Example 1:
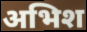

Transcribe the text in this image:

अभिश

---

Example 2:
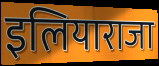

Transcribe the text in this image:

इलियाराजा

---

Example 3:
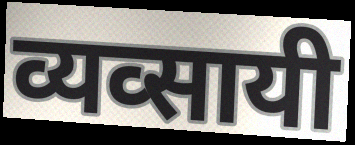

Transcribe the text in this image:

व्यव्सायी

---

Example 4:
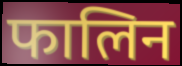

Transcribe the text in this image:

फालिन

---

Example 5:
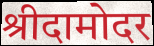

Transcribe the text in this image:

श्रीदामोदर